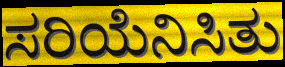
ಸರಿಯೆನಿಸಿತು